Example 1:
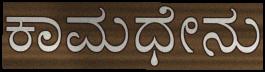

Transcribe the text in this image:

ಕಾಮಧೇನು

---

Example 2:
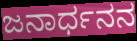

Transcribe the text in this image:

ಜನಾರ್ಧನನ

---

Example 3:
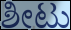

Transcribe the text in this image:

ಶೀಟು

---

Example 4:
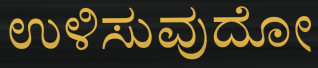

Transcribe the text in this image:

ಉಳಿಸುವುದೋ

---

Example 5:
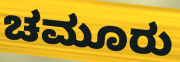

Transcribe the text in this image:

ಚಮೂರು